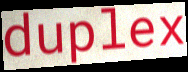
duplex